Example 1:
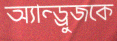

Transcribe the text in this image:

অ্যান্ড্রুজকে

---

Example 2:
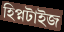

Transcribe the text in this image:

হিপ্নটাইজ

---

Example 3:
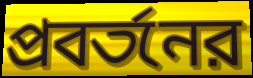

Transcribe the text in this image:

প্রবর্তনের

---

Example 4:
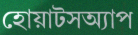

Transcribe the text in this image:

হোয়াটসঅ্যাপ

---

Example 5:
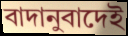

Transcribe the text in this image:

বাদানুবাদেই